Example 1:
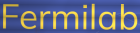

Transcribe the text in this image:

Fermilab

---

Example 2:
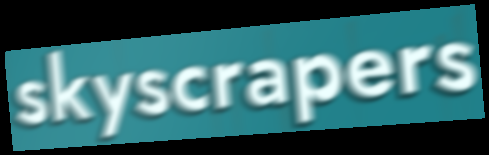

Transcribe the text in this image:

skyscrapers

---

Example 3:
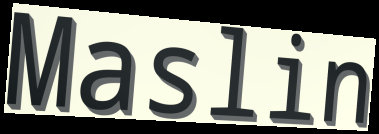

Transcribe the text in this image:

Maslin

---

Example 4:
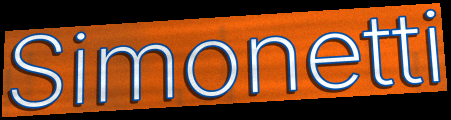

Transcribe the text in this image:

Simonetti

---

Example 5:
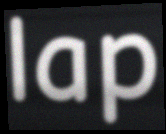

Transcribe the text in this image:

lap